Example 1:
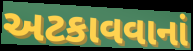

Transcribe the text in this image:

અટકાવવાનાં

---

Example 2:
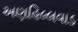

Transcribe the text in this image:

અણહિલ્લવાડ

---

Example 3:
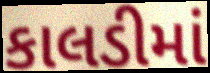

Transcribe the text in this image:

કાલડીમાં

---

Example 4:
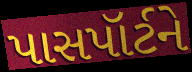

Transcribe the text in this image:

પાસપૉર્ટને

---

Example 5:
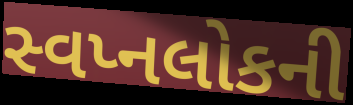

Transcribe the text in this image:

સ્વપ્નલોકની